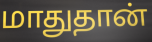
மாதுதான்